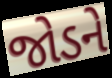
જોડને